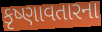
કૃષ્ણાવતારના